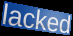
lacked